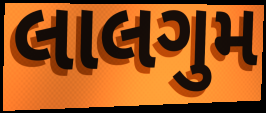
લાલગુમ